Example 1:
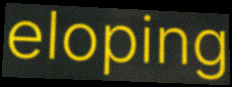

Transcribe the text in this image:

eloping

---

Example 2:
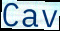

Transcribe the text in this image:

Cav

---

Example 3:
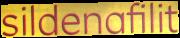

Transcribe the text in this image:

sildenafilit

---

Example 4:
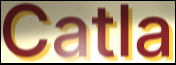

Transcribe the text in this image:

Catla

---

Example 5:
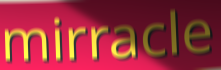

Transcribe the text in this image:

mirracle